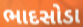
ભાદસોડા